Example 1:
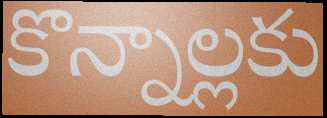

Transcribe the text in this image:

కొన్నాల్లకు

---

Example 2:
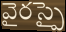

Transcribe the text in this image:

వైరస్పై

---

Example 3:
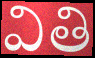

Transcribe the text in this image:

వితి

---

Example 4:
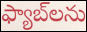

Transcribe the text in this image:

ఫ్యాబ్‌లను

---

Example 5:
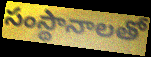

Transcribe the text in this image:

సంస్థానాలతో